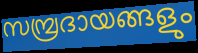
സമ്പ്രദായങ്ങളും